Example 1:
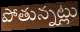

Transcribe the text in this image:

పోతున్నట్లు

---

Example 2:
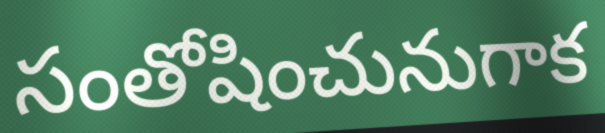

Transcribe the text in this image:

సంతోషించునుగాక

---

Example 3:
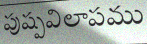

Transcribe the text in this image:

పుష్పవిలాపము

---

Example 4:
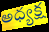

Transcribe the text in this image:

అధ్యక్ష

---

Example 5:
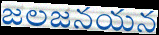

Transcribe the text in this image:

జలజనయన